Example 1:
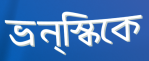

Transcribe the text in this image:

ভ্রন্‌স্কিকে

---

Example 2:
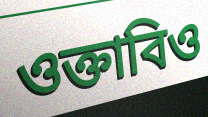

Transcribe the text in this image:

ওক্তাবিও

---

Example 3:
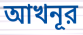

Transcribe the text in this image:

আখনূর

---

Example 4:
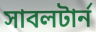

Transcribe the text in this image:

সাবলটার্ন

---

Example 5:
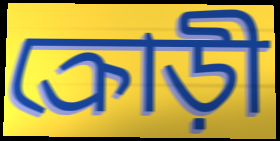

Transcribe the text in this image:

ক্রোড়ী